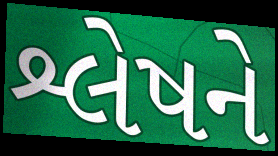
શ્લેષને